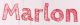
Marlon